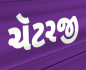
ચૅટરજી